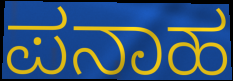
ಪನಾಹ